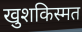
खुशकिस्मत